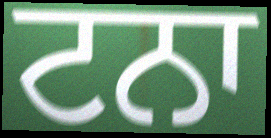
ਟਨਾ